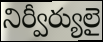
నిర్వీర్యులై